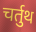
चर्तुथ